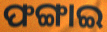
ଫଙ୍ଗାଇ